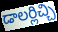
డాలర్లిచ్చి